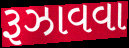
રૂઝાવવા